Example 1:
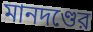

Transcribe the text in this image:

মানদণ্ডের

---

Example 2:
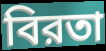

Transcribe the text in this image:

বিরতা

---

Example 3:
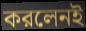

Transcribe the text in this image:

করলেনই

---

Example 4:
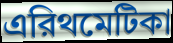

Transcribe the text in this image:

এরিথমেটিকা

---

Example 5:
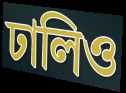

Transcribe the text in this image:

ঢালিও